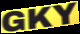
GKY